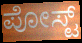
ಪೋಸ್ಟ್